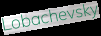
Lobachevsky